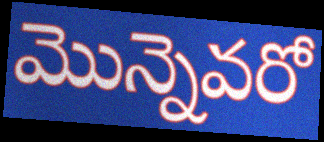
మొన్నెవరో